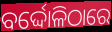
ବର୍ଦ୍ଦୋଳିଠାରେ